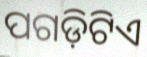
ପଗଡ଼ିଟିଏ